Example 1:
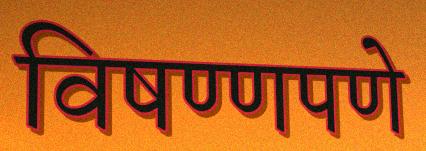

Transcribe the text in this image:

विषण्णपणे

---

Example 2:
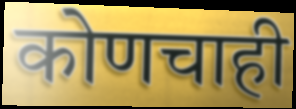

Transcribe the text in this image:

कोणचाही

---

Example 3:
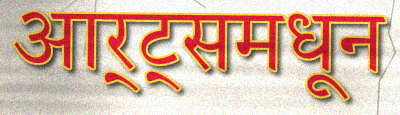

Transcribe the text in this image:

आर्ट्समधून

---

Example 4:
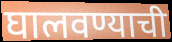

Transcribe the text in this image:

घालवण्याची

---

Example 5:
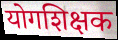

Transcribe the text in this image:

योगशिक्षक